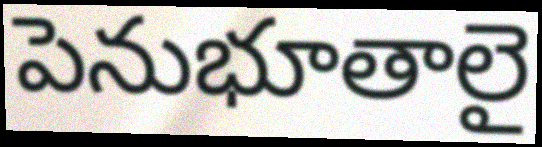
పెనుభూతాలై